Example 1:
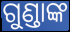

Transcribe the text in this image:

ଗୁଣ୍ଡାଙ୍କ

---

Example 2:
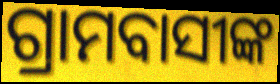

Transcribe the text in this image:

ଗ୍ରାମବାସୀଙ୍କ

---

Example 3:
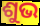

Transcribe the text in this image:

ଶୁଭ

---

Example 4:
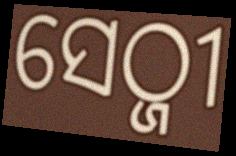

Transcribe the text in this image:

ସେଠ୍ଜୀ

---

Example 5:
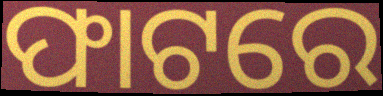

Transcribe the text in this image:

ଫାଟରେ